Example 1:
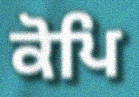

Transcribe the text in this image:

ਕੋਪਿ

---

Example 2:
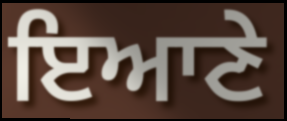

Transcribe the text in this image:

ਇਆਣੇ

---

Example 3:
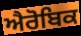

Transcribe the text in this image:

ਐਰੋਬਿਕ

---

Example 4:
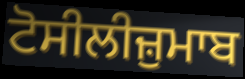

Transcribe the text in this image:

ਟੋਸੀਲੀਜ਼ੁਮਾਬ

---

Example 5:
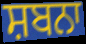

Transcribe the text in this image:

ਸ਼ਬਨਾ